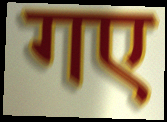
गए